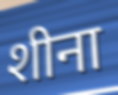
शीना